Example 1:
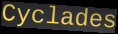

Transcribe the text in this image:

Cyclades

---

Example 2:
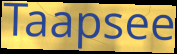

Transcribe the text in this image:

Taapsee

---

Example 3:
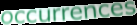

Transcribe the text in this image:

occurrences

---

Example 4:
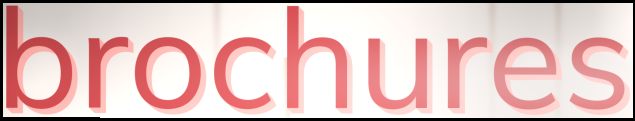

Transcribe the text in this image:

brochures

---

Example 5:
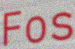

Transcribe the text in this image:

Fos